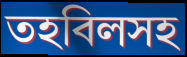
তহবিলসহ